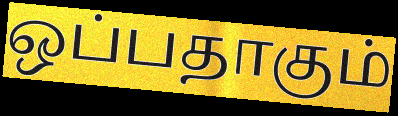
ஒப்பதாகும்